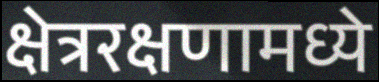
क्षेत्ररक्षणामध्ये